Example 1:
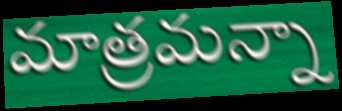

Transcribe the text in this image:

మాత్రమన్నా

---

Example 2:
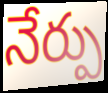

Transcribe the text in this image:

నేర్పు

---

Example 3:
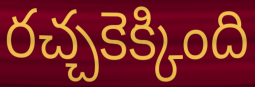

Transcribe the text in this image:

రచ్చకెక్కింది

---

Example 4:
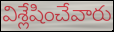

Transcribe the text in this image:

విశ్లేషించేవారు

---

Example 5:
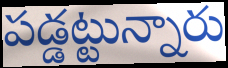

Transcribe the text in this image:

పడ్డట్టున్నారు